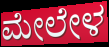
ಮೇಲೇಳ